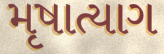
મૃષાત્યાગ